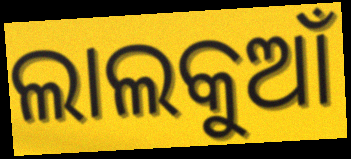
ଲାଲକୁଆଁ